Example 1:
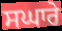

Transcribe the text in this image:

ਸਘਾਰੇ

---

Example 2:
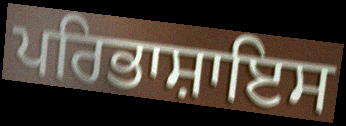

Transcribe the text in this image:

ਪਰਿਭਾਸ਼ਾਇਸ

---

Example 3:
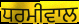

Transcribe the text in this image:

ਧਰਮੀਵਾਲ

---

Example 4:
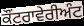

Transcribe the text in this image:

ਕੌਂਟਰਾਵੇਰੀਅੰਟ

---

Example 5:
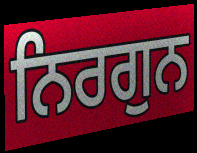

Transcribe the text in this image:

ਨਿਰਗੁਨ